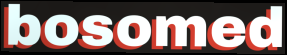
bosomed